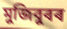
মুজিবুৰৰ